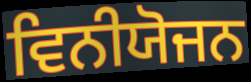
ਵਿਨੀਯੋਜਨ